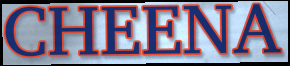
CHEENA